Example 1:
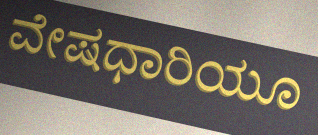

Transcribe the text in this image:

ವೇಷಧಾರಿಯೂ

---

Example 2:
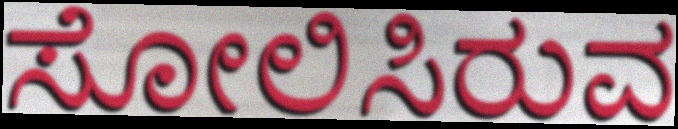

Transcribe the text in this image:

ಸೋಲಿಸಿರುವ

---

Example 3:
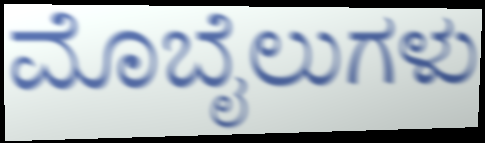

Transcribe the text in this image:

ಮೊಬೈಲುಗಳು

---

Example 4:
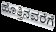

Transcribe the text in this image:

ಹೊತ್ತಿನವರೆಗೆ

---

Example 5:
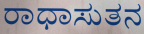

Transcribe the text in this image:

ರಾಧಾಸುತನ